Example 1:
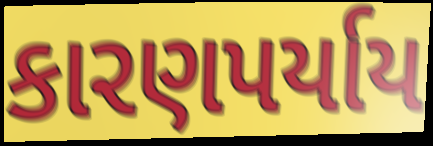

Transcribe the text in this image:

કારણપર્યાય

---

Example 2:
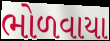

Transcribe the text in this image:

ભોળવાયા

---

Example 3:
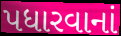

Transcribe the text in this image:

પધારવાનાં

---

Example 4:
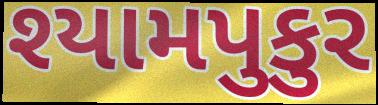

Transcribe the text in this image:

શ્યામપુકુર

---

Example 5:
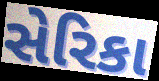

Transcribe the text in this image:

સેરિકા